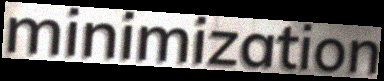
minimization